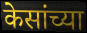
केसांच्या